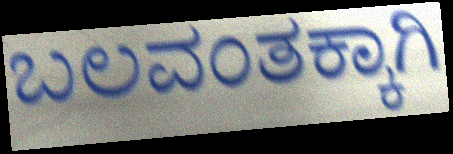
ಬಲವಂತಕ್ಕಾಗಿ